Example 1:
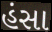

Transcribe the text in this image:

હંસા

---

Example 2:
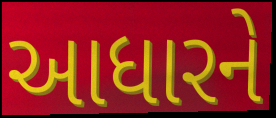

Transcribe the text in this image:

આધારને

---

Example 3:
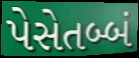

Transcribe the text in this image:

પેસેતબ્બં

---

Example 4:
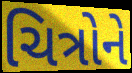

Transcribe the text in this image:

ચિત્રોને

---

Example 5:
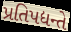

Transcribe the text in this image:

પ્રતિપદ્યન્તે